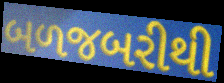
બળજબરીથી